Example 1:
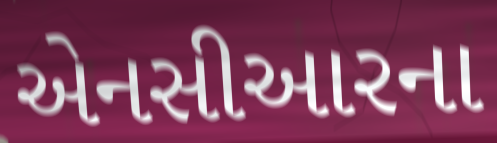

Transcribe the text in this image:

એનસીઆરના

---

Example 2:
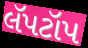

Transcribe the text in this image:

લૅપટૉપ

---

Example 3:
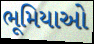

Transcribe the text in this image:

ભૂમિયાઓ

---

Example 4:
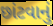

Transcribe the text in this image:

છાંટવાનું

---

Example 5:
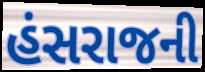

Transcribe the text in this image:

હંસરાજની